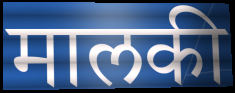
मालकी